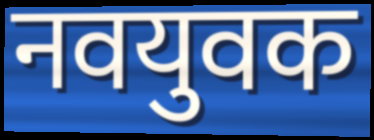
नवयुवक